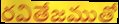
రవితేజముతో